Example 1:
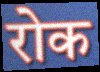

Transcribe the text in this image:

रोक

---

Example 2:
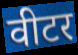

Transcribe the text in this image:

वीटर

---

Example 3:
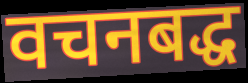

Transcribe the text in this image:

वचनबद्ध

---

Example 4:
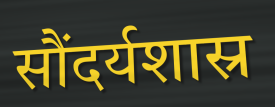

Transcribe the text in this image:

सौंदर्यशास्र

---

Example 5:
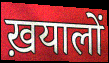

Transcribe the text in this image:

ख़यालों